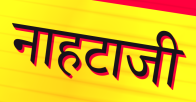
नाहटाजी